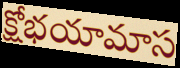
క్షోభయామాస